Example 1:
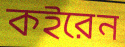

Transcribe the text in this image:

কইরেন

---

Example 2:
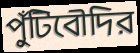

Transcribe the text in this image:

পুঁটিবৌদির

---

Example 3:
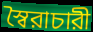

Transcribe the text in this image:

স্বৈরাচারী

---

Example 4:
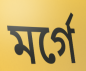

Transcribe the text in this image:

মর্গে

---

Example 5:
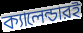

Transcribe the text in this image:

ক্যালেন্ডারই